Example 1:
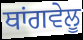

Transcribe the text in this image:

ਥਾਂਗਵੇਲੂ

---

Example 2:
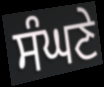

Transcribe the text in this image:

ਸੰਘਣੇ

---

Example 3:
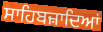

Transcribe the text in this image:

ਸਾਹਿਬਜ਼ਾਦਿਆਂ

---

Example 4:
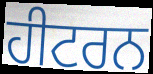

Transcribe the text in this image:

ਹੀਟਰਨ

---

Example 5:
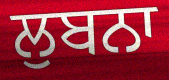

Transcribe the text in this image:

ਲੁਬਨਾ